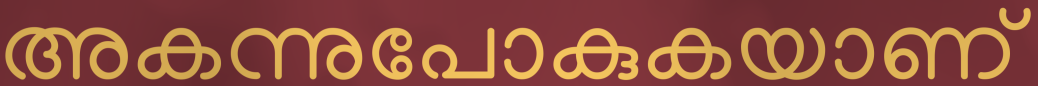
അകന്നുപോകുകയാണ്